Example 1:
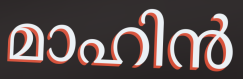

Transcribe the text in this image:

മാഹിൻ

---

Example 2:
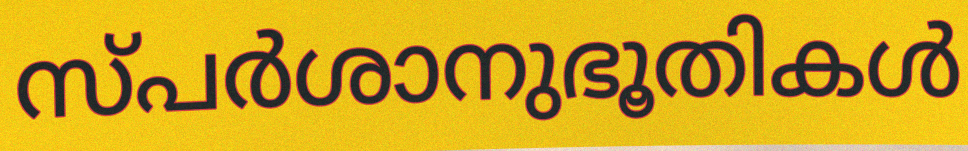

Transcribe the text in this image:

സ്പർശാനുഭൂതികൾ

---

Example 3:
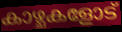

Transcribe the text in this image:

കാഴ്ചകളോട്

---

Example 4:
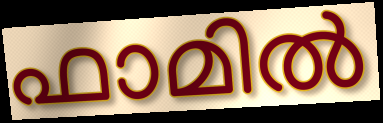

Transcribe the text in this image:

ഫാമിൽ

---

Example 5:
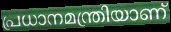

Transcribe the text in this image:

പ്രധാനമന്ത്രിയാണ്